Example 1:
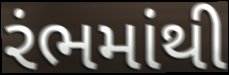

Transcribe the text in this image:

રંભમાંથી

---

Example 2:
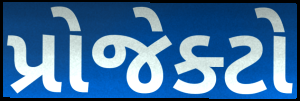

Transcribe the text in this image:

પ્રોજેક્ટો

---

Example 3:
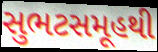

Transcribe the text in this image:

સુભટસમૂહથી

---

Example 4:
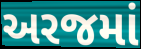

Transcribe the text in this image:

અરજમાં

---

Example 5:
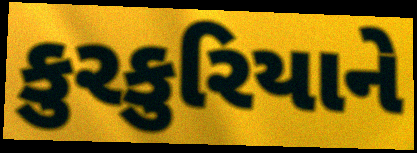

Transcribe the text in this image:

કુરકુરિયાને